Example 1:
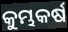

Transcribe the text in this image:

କୁମ୍ଭକର୍ଷ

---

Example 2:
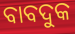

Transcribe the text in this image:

ବାବଦୁକ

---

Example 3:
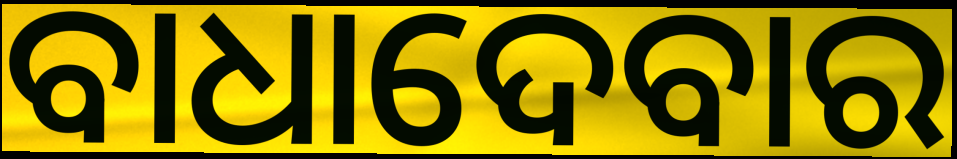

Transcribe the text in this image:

ବାଧାଦେବାର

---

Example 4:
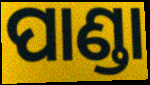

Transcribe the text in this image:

ପାଣ୍ଡା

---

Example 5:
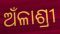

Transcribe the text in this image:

ଅଁଳାଶ୍ରୀ